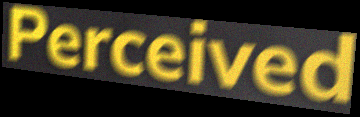
Perceived